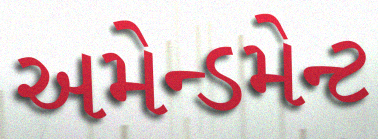
અમેન્ડમેન્ટ